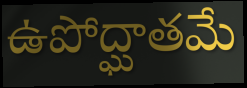
ఉపోద్ఘాతమే